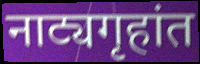
नाट्यगृहांत